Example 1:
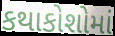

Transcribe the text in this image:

કથાકોશોમાં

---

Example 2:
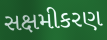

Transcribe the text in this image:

સક્ષમીકરણ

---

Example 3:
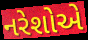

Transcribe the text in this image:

નરેશોએ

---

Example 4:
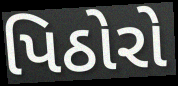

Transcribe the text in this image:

પિઠોરો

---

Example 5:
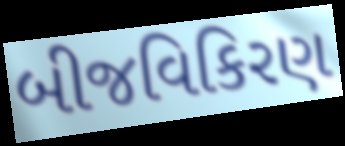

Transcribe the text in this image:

બીજવિકિરણ